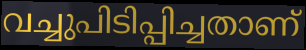
വച്ചുപിടിപ്പിച്ചതാണ്